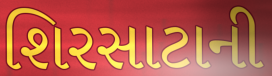
શિરસાટાની